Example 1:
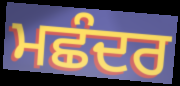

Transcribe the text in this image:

ਮਛੰਦਰ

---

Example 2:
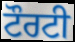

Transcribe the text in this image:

ਟੌਰਟੀ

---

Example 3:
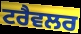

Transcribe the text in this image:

ਟਰੈਵਲਰ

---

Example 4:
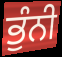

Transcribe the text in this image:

ਭੁੰਨੀ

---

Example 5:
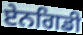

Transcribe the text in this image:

ਏਨਗਿਡੀ